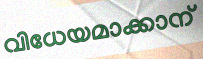
വിധേയമാക്കാന്